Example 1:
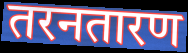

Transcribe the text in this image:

तरनतारण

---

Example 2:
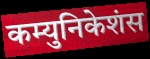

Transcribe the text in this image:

कम्‍युनिकेशंस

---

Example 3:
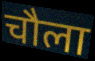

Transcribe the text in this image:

चौला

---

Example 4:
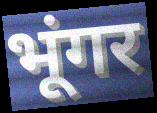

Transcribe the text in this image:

भूंगर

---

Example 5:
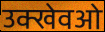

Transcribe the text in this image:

उक्खेवओ